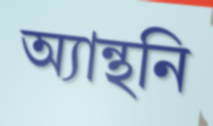
অ্যান্থনি